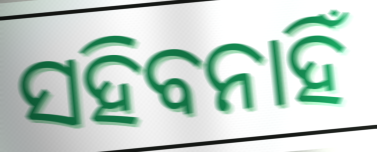
ସହିବନାହିଁ